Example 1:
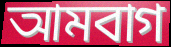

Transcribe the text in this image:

আমবাগ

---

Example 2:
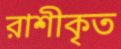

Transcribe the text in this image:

রাশীকৃত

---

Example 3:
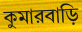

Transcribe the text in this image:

কুমারবাড়ি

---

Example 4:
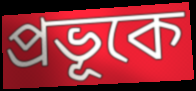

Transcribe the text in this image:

প্রভূকে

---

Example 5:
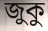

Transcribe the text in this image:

জুকু